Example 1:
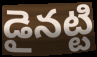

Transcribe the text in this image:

డైనట్టి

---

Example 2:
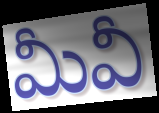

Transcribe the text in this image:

మీవీ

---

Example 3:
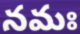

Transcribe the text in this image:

నమః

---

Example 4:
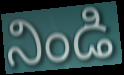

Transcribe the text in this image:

నిండి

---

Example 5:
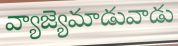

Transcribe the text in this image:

వ్యాజ్యెమాడువాడు